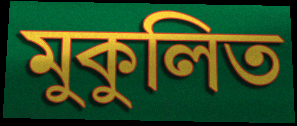
মুকুলিত